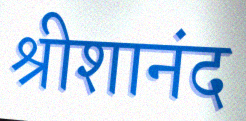
श्रीशानंद